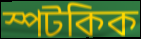
স্পটকিক